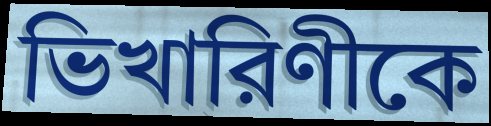
ভিখারিণীকে